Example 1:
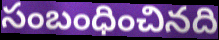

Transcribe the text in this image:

సంబంధించినది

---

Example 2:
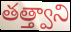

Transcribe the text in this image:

తత్త్వాని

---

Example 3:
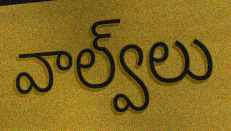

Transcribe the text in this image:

వాల్వ్‌లు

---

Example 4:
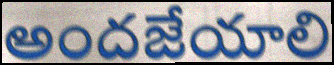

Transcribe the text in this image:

అందజేయాలి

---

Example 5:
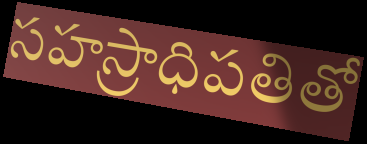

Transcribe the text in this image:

సహస్రాధిపతితో